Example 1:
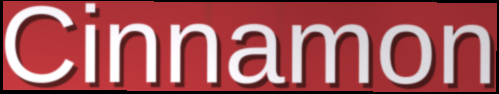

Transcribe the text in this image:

Cinnamon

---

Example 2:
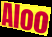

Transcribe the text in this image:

Aloo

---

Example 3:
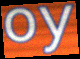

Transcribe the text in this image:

oy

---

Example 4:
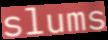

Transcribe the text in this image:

slums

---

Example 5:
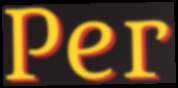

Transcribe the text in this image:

Per